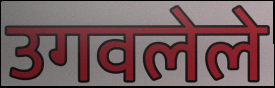
उगवलेले